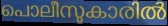
പൊലീസുകാരിൽ